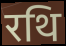
रथि